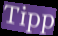
Tipp